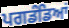
ਪਗਡੰਡਿਆਂ